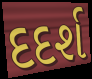
દદર્શ